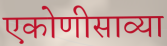
एकोणीसाव्या